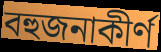
বহুজনাকীর্ণ